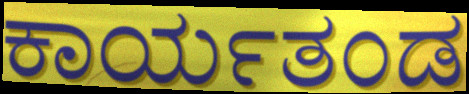
ಕಾರ್ಯತಂಡ